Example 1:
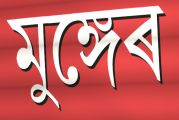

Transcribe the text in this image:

মুঙ্গেৰ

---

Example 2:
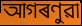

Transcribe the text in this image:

আগৰণুৱা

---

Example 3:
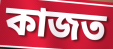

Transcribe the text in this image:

কাজত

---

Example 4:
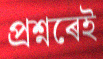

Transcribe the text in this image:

প্ৰশ্নৰেই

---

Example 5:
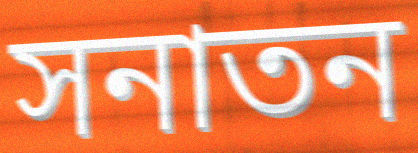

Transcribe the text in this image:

সনাতন